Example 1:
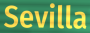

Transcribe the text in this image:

Sevilla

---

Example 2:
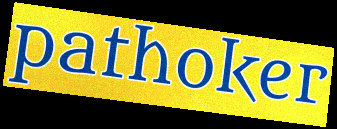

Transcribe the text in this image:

pathoker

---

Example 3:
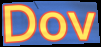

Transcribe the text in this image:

Dov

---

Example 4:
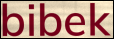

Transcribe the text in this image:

bibek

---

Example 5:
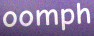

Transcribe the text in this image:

oomph